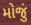
મોજું